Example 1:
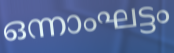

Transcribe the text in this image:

ഒന്നാംഘട്ടം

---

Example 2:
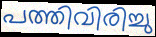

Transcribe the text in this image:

പത്തിവിരിച്ചു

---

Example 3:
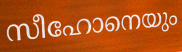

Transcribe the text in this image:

സീഹോനെയും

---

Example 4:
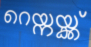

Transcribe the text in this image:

റെയ്നയ്ക്ക്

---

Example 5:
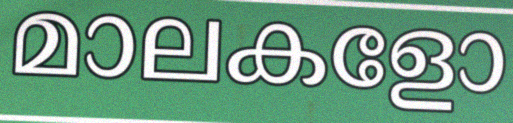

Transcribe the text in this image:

മാലകളോ